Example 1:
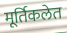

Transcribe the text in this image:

मूर्तिकलेत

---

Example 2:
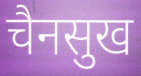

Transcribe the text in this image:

चैनसुख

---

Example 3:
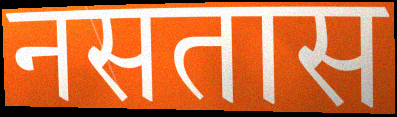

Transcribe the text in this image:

नसतास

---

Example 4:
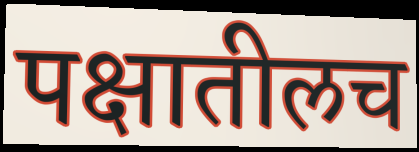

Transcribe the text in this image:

पक्षातीलच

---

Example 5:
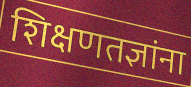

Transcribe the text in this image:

शिक्षणतज्ञांना